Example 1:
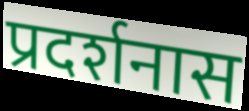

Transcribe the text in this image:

प्रदर्शनास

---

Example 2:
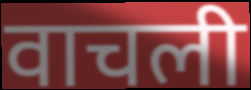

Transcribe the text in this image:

वाचली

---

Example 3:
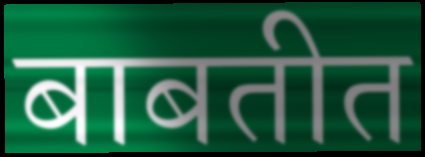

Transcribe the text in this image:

बाबतीत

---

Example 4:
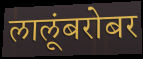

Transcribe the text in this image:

लालूंबरोबर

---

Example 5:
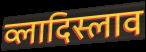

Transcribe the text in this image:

व्लादिस्लाव